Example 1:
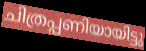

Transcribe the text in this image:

ചിത്രപ്പണിയായിട്ടു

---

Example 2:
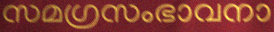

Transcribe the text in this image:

സമഗ്രസംഭാവനാ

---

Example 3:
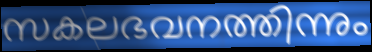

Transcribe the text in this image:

സകലഭവനത്തിന്നും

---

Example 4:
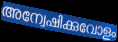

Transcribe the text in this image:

അന്വേഷിക്കുവോളം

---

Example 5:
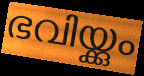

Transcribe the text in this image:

ഭവിയ്ക്കും